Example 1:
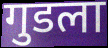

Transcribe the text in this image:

गुडला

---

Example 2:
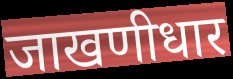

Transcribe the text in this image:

जाखणीधार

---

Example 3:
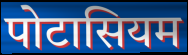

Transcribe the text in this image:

पोटासियम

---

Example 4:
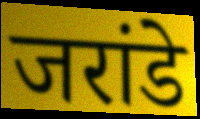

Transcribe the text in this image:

जरांडे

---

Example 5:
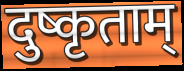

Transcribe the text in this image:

दुष्कृताम्